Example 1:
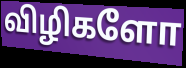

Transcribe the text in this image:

விழிகளோ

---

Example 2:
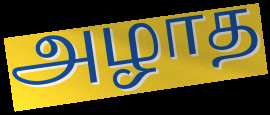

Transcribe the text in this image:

அழாத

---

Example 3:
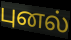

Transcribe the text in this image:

புனல்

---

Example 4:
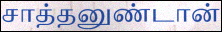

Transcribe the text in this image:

சாத்தனுண்டான்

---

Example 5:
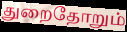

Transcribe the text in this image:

துறைதோறும்